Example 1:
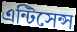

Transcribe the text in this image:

এন্টিসেন্স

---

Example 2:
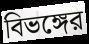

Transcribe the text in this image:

বিভঙ্গের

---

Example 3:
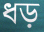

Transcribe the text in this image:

ধড়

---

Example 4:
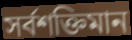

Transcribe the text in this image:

সর্বশক্তিমান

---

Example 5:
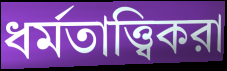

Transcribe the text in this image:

ধর্মতাত্ত্বিকরা